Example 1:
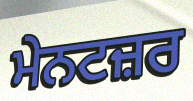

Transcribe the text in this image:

ਮੇਨਟਜ਼ਰ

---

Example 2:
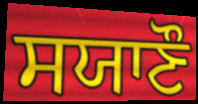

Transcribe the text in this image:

ਸਯਾਣੌ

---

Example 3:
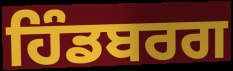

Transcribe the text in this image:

ਹਿੰਡਬਰਗ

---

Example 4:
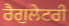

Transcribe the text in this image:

ਰੈਗੁਲੇਟਰੀ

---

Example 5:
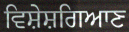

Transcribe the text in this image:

ਵਿਸ਼ੇਸ਼ਗਿਆਣ